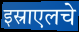
इस्राएलचे